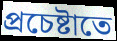
প্রচেষ্টাতে